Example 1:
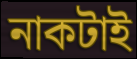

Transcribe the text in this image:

নাকটাই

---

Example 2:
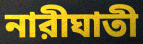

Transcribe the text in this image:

নারীঘাতী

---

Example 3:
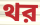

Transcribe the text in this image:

থর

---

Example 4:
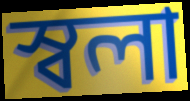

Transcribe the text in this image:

স্বলা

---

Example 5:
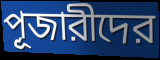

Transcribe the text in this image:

পূজারীদের